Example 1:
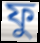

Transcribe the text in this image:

ফু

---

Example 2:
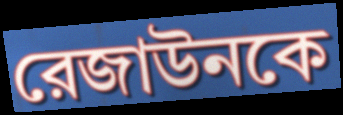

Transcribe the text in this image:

রেজাউনকে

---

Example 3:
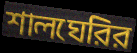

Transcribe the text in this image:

শালঘেরির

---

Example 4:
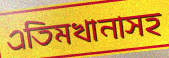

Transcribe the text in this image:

এতিমখানাসহ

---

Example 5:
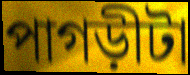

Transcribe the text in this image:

পাগড়ীটা